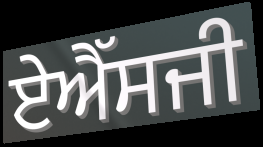
ਏਐੱਸਜੀ